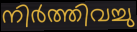
നിർത്തിവച്ചു